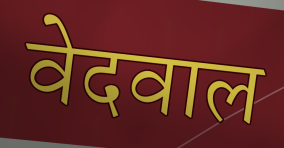
वेदवाल